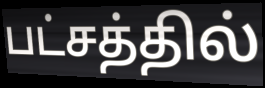
பட்சத்தில்